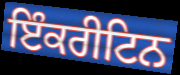
ਇੰਕਰੀਟਿਨ